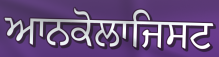
ਆਨਕੋਲਾਜਿਸਟ